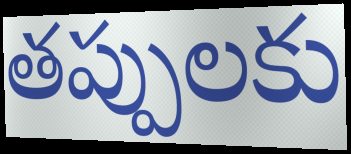
తప్పులకు